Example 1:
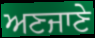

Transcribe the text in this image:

ਅਣਜਾਣੇ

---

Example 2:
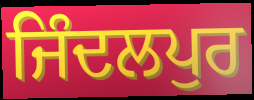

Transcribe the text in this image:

ਜਿੰਦਲਪੁਰ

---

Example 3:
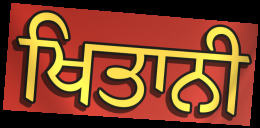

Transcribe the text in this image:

ਖਿਤਾਨੀ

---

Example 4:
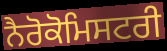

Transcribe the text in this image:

ਨੈਰੋਕੋਮਿਸਟਰੀ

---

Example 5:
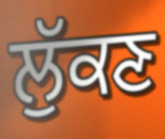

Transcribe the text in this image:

ਲੁੱਕਣ